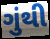
ગુંથી